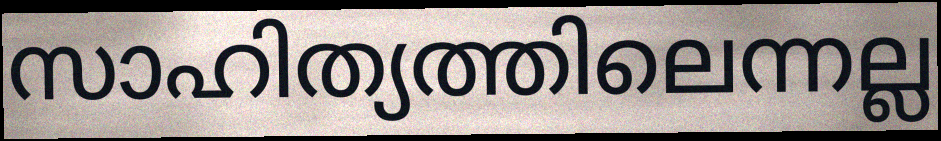
സാഹിത്യത്തിലെന്നല്ല